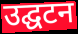
उद्घटन